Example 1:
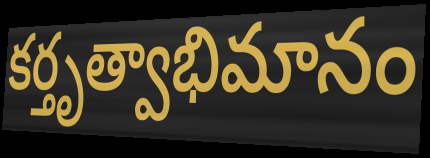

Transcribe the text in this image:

కర్తృత్వాభిమానం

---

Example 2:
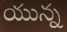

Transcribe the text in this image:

యున్న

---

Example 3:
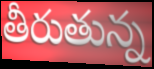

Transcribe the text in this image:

తీరుతున్న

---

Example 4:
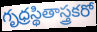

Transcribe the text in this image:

గృధ్రస్థితాస్త్రకరో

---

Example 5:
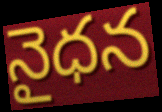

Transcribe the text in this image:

నైధన